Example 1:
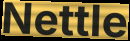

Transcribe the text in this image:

Nettle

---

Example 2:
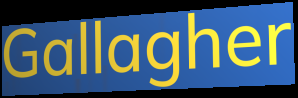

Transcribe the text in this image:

Gallagher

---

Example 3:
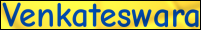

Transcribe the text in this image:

Venkateswara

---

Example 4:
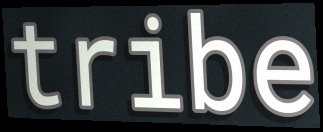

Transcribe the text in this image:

tribe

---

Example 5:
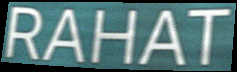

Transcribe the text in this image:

RAHAT